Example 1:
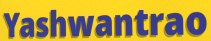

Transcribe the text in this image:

Yashwantrao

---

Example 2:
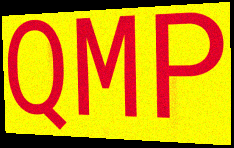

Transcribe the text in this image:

QMP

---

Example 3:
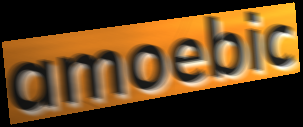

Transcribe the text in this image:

amoebic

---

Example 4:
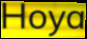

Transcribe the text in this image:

Hoya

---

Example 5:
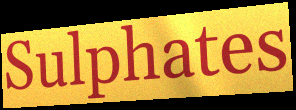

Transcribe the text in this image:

Sulphates